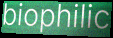
biophilic